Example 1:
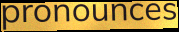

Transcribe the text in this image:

pronounces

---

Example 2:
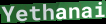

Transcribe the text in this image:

Yethanai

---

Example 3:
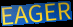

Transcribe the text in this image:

EAGER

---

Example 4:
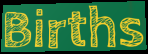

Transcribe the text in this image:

Births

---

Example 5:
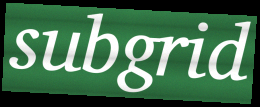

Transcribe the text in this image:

subgrid